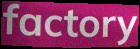
factory